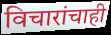
विचारांचाही